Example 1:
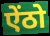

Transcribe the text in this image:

ऐंठो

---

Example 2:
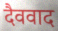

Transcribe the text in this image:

दैववाद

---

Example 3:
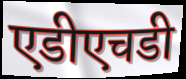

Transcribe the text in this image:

एडीएचडी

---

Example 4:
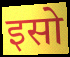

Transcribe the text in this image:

इसो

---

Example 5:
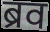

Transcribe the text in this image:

ब्रव